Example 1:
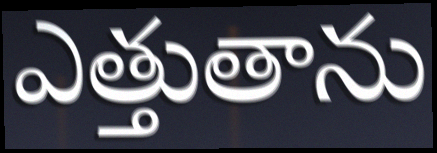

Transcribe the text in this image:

ఎత్తుతాను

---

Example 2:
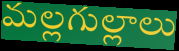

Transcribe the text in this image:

మల్లగుల్లాలు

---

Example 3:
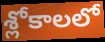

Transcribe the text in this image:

శ్లోకాలలో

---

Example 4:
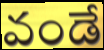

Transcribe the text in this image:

వండే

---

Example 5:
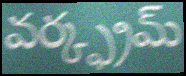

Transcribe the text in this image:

వర్క్ఫ్రమ్